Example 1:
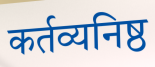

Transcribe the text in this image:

कर्तव्यनिष्ठ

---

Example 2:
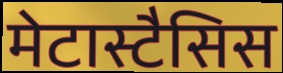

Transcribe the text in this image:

मेटास्टैसिस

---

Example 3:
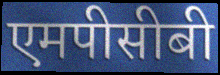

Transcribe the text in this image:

एमपीसीबी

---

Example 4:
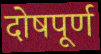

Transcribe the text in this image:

दोषपूर्ण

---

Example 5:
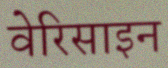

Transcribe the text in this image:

वेरिसाइन